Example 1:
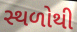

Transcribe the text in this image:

સ્થળોથી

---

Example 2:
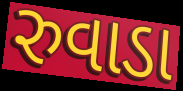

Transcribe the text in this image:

રુવાડા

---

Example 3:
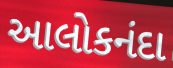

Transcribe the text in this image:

આલોકનંદા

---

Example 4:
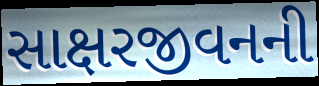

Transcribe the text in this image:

સાક્ષરજીવનની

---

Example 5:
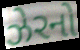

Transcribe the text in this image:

ઝેરનો